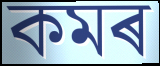
কমৰ